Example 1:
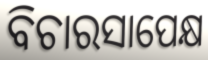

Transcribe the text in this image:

ବିଚାରସାପେକ୍ଷ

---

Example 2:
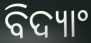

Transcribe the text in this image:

ବିଦ୍ଯାଂ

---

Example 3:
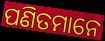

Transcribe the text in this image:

ପଣିତମାନେ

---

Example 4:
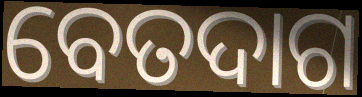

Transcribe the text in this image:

ବେତଦାଗ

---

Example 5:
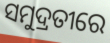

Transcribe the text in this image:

ସମୁଦ୍ରତୀରେ